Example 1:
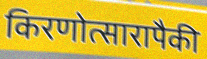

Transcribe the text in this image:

किरणोत्सारापैकी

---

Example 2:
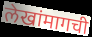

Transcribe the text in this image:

लेखांमागची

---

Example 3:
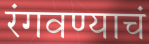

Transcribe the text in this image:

रंगवण्याचं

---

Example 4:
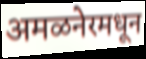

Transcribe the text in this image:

अमळनेरमधून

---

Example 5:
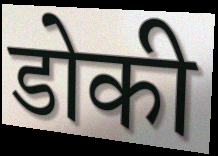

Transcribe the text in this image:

डोकी